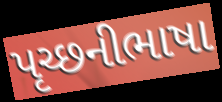
પૃચ્છનીભાષા